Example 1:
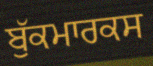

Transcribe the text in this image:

ਬੁੱਕਮਾਰਕਸ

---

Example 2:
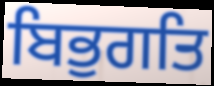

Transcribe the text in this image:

ਬਿਭੁਗਤਿ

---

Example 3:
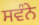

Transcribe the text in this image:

ਸਵੰਨੇ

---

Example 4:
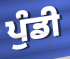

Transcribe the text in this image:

ਪੁੰਡੀ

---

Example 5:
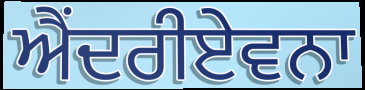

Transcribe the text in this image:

ਐਂਦਰੀਏਵਨਾ